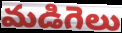
మడిగెలు